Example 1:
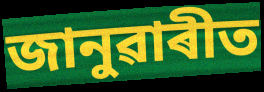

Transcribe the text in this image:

জানুৱাৰীত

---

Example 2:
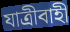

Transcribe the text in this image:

যাত্ৰীবাহী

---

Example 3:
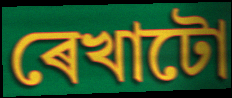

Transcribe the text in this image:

ৰেখাটো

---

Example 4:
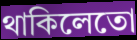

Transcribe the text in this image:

থাকিলেতো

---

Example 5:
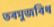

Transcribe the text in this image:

তৰমুজবিধ